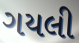
ગયલી